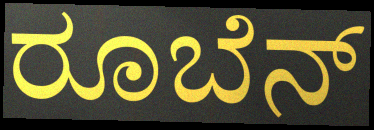
ರೂಬೆನ್